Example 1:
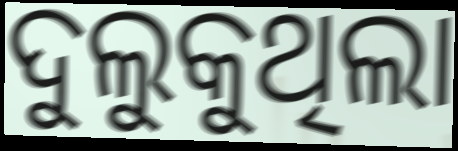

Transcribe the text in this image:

ଦୁଲୁକୁଥିଲା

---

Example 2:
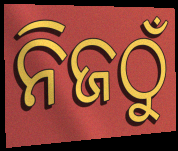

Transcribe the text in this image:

ନିଜଠୁଁ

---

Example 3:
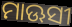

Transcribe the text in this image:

ମାଊସୀ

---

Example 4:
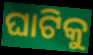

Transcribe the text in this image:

ଘାଟିକୁ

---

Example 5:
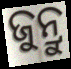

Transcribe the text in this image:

ଜୁନ୍ରୁ